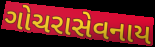
ગોચરાસેવનાય